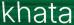
khata